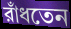
রাঁধতেন